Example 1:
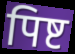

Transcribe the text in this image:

पिष्ट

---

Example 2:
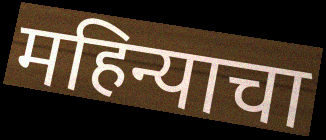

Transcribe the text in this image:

महिन्याचा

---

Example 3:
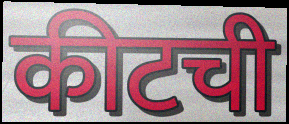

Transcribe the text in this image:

कीटची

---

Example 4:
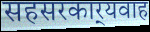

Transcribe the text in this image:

सहसरकार्यवाह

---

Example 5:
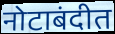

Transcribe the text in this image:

नोटाबंदीत